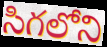
సిగలోని